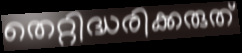
തെറ്റിദ്ധരിക്കരുത്